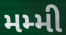
મમ્મી